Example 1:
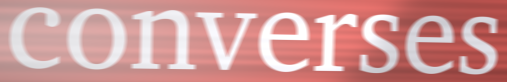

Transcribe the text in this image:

converses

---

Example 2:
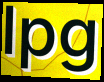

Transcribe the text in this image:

lpg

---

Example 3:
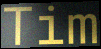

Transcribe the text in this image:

Tim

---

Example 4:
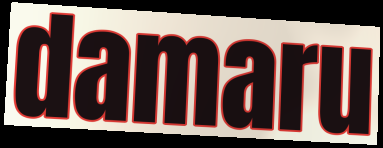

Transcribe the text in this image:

damaru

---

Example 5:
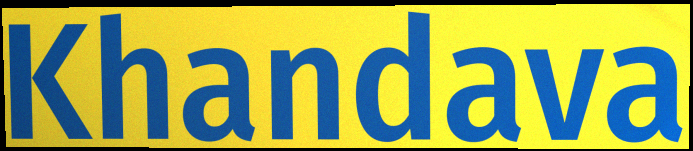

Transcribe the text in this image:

Khandava